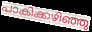
പാകിക്കഴിഞ്ഞു